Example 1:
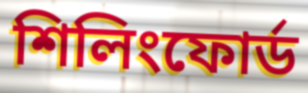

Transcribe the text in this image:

শিলিংফোর্ড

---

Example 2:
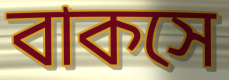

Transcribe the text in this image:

বাকসে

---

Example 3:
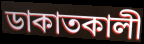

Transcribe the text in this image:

ডাকাতকালী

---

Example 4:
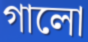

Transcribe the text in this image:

গালো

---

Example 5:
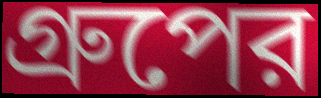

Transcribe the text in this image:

গ্রুপের